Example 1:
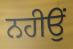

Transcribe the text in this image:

ਨਹੀਉਂ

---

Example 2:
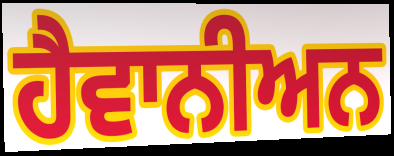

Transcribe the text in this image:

ਹੈਵਾਨੀਅਨ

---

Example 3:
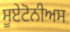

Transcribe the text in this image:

ਸੂਏਟੋਨੀਅਸ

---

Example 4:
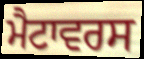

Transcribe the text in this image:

ਮੈਟਾਵਰਸ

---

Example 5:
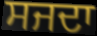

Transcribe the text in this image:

ਸਜਦਾ